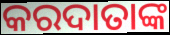
କରଦାତାଙ୍କ